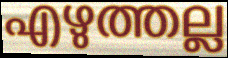
എഴുത്തല്ല